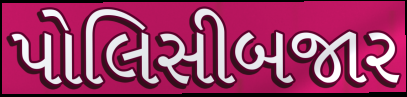
પોલિસીબજાર